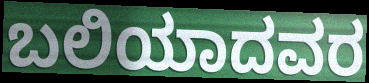
ಬಲಿಯಾದವರ